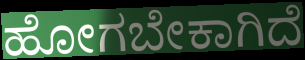
ಹೋಗಬೇಕಾಗಿದೆ